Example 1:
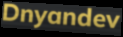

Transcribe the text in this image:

Dnyandev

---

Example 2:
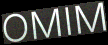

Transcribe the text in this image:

OMIM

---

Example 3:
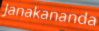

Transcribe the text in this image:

Janakananda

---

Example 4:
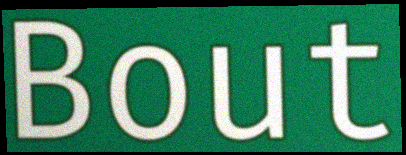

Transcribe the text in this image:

Bout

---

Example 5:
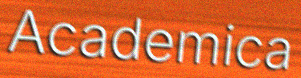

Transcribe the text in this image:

Academica